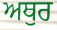
ਅਥੁਰ